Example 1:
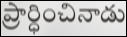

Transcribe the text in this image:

ప్రార్ధించినాడు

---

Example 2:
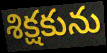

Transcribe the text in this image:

శిక్షకును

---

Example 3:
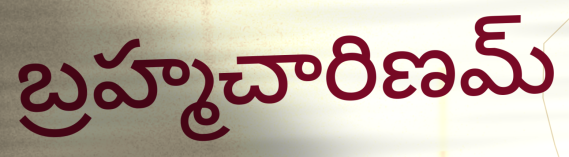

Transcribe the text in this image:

బ్రహ్మచారిణమ్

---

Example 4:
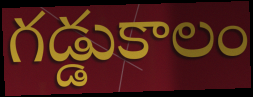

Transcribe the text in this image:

గడ్డుకాలం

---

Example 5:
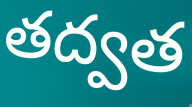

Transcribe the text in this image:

తద్వత